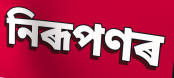
নিৰূপণৰ